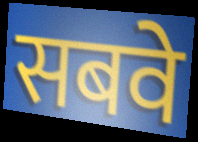
सबवे